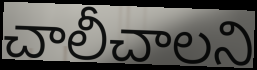
చాలీచాలని